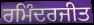
ਰਮਿੰਦਰਜੀਤ